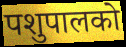
पशुपालको